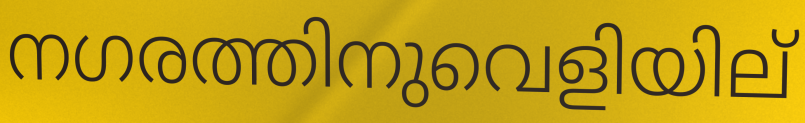
നഗരത്തിനുവെളിയില്